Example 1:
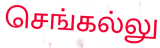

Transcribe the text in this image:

செங்கல்லு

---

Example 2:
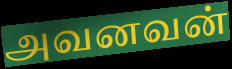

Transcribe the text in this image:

அவனவன்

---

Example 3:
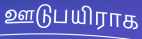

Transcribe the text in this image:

ஊடுபயிராக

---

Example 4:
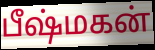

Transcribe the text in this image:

பீஷ்மகன்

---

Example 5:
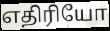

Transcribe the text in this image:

எதிரியோ